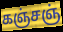
கஞ்சஞ்